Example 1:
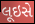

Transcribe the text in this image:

લૂઇસે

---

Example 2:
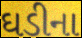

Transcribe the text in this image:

ઘડીના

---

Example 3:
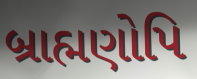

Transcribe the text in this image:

બ્રાહ્મણોપિ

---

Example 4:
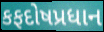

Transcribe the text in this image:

કફદોષપ્રધાન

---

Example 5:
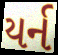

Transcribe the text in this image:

યર્ન